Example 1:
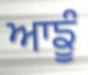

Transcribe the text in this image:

ਆਙੂੰ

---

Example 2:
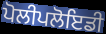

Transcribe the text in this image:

ਪੋਲੀਪਲੋਇਡੀ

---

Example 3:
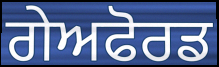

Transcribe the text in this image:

ਗੇਅਫੋਰਡ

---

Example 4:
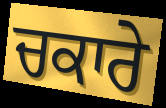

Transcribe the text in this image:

ਚਕਾਰੇ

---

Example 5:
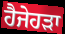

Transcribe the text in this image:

ਹੈਜੇਹੜਾ